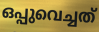
ഒപ്പുവെച്ചത്